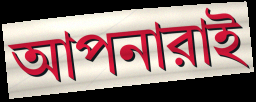
আপনারাই